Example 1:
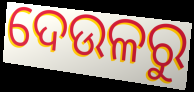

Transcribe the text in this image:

ଦେଉଳରୁ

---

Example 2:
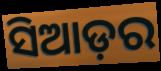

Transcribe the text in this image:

ସିଆଡ଼ର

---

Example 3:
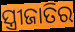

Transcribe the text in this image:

ସ୍ତ୍ରୀଜାତିର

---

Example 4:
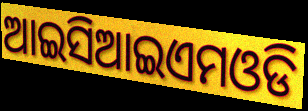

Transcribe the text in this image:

ଆଇସିଆଇଏମଓଡି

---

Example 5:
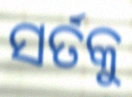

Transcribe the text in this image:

ସର୍ତକୁ